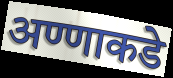
अण्णाकडे